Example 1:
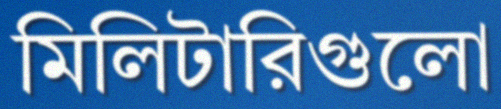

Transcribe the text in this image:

মিলিটারিগুলো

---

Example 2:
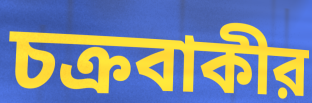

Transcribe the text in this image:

চক্রবাকীর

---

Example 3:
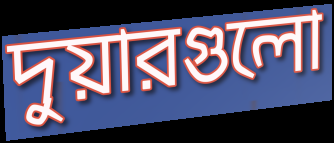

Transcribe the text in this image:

দুয়ারগুলো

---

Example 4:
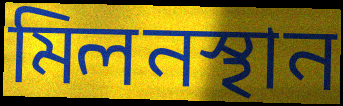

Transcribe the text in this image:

মিলনস্থান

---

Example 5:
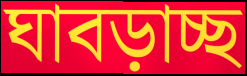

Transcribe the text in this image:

ঘাবড়াচ্ছ